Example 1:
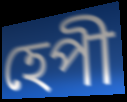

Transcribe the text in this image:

হেপী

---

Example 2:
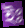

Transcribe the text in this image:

ইঃ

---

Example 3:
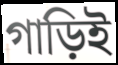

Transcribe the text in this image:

গাড়িই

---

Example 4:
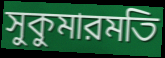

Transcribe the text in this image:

সুকুমারমতি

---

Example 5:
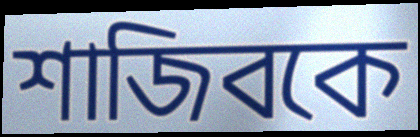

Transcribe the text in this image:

শাজিবকে